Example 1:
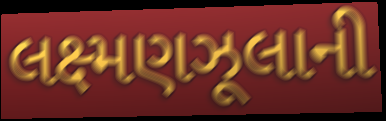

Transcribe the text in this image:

લક્ષ્મણઝૂલાની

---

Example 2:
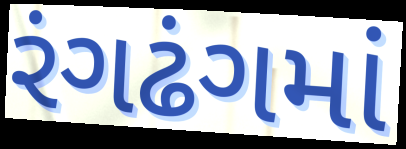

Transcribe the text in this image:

રંગઢંગમાં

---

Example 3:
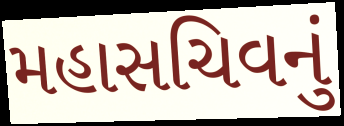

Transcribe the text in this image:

મહાસચિવનું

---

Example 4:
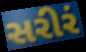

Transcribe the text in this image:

સરીરં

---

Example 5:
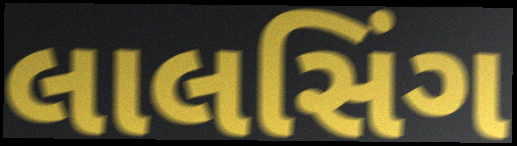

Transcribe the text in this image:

લાલસિંગ